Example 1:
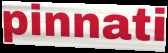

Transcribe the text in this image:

pinnati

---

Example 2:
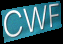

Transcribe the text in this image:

CWF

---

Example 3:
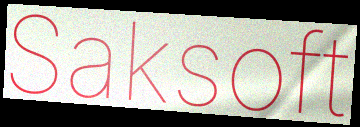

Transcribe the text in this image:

Saksoft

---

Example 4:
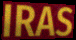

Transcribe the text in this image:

IRAS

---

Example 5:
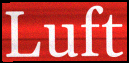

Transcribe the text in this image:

Luft